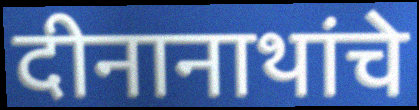
दीनानाथांचे